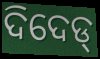
ଦିଦେଡ୍